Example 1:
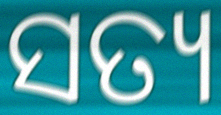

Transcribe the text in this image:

ସତ୍ୟ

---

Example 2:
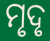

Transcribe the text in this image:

ମୃଦୃ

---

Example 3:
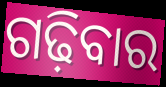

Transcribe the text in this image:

ଗଢ଼ିବାର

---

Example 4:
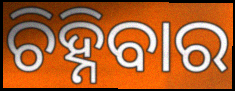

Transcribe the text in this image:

ଚିହ୍ନିବାର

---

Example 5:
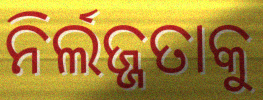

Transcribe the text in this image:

ନିର୍ଲଜ୍ଜତାକୁ